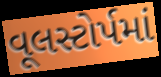
વૂલસ્ટોર્પમાં